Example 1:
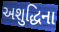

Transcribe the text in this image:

અશુદ્ધિના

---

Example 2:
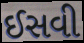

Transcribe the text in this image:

ઈસવી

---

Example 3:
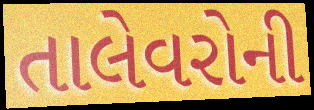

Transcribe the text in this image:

તાલેવરોની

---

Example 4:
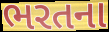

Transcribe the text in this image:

ભરતના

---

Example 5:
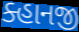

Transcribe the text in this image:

ક્હાનજી